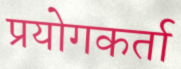
प्रयोगकर्ता